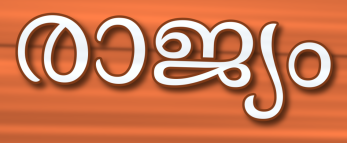
രാജ്യം